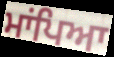
ਮਾਂਪਿਆ